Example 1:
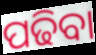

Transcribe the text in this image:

ପଢିବା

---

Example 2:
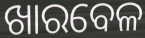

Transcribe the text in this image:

ଖାରବେଳ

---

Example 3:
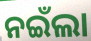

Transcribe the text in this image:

ନଇଁଲା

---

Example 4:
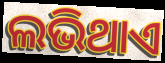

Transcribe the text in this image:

ଲଭିଥାଏ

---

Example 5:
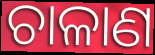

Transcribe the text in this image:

ଚାଳାଣ